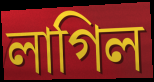
লাগিল